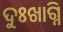
ଦୁଃଖାଗ୍ନି